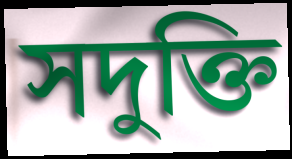
সদুক্তি